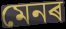
মেনৰ